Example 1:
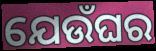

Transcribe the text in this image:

ଯେଉଁଘର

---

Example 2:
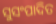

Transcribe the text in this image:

ସୁସଂପାଦିତ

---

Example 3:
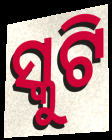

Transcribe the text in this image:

ସ୍କୁଟି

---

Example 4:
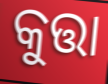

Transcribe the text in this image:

କୁତ୍ତା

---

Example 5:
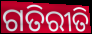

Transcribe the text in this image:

ଗତିରୀତି